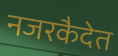
नजरकैदेत